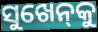
ସୁଖେନ୍‌କୁ